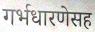
गर्भधारणेसह